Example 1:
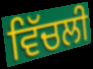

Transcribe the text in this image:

ਵਿੱਚਲੀ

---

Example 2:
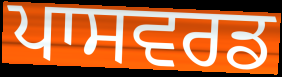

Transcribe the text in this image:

ਪਾਸਵਰਡ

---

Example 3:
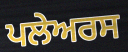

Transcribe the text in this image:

ਪਲੇਅਰਸ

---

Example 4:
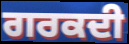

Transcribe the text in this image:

ਗਰਕਦੀ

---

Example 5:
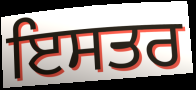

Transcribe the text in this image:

ਇਸਤਰ